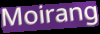
Moirang